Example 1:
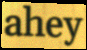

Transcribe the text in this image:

ahey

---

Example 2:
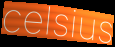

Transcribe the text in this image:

celsius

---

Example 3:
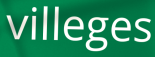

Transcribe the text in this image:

villeges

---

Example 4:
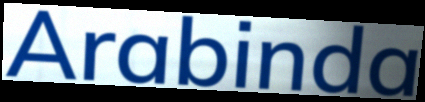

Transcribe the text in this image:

Arabinda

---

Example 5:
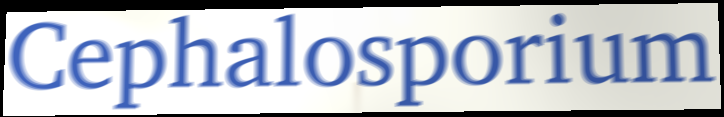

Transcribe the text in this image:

Cephalosporium